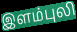
இளம்புலி